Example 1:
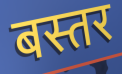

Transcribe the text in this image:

बस्तर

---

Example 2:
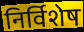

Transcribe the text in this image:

निर्विशेष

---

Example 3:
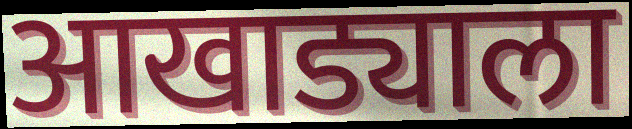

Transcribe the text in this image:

आखाड्याला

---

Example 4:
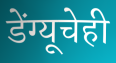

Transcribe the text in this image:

डेंग्यूचेही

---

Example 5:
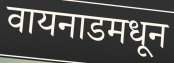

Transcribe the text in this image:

वायनाडमधून